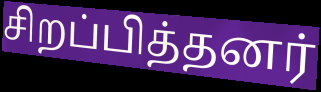
சிறப்பித்தனர்